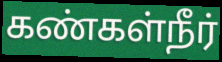
கண்கள்நீர்